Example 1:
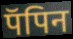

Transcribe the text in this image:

पॅपिन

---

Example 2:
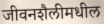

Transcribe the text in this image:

जीवनशैलीमधील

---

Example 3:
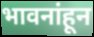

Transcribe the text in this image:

भावनांहून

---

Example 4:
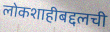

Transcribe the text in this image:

लोकशाहीबद्दलची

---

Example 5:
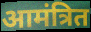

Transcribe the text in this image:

आमंत्रित